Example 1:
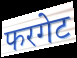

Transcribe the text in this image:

फरगेट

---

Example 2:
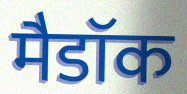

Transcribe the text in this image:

मैडॉक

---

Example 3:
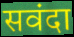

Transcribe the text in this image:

सवंदा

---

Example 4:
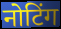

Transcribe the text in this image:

नोटिंग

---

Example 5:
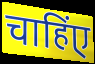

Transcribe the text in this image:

चाहिंए